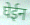
घेईन